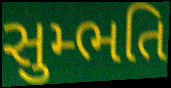
સુમ્ભતિ